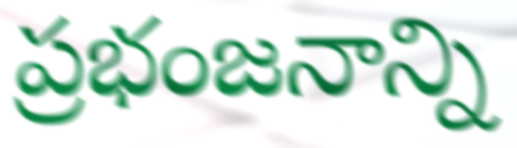
ప్రభంజనాన్ని